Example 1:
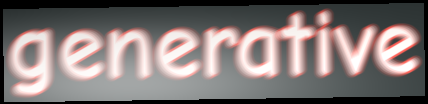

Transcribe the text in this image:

generative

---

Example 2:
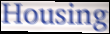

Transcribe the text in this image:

Housing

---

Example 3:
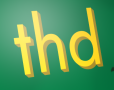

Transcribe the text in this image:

thd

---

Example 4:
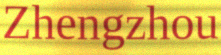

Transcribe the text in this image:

Zhengzhou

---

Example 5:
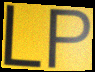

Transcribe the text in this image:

LP